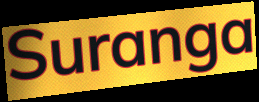
Suranga